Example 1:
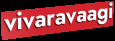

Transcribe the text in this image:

vivaravaagi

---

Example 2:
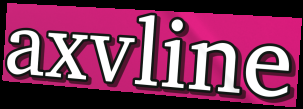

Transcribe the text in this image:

axvline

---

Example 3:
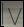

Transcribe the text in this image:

Iv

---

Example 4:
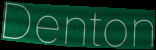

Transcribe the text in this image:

Denton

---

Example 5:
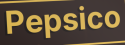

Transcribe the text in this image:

Pepsico